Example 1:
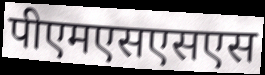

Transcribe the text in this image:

पीएमएसएसएस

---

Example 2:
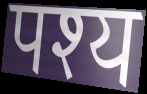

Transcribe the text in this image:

पश्य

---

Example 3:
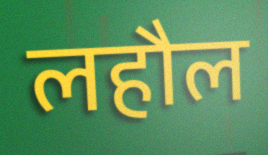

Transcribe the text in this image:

लहौल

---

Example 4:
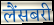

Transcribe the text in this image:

लैंसबरी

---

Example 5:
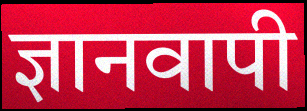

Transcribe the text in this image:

ज्ञानवापी